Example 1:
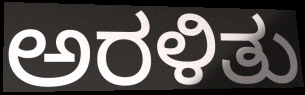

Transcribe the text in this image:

ಅರಳಿತು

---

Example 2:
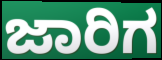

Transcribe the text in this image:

ಜಾರಿಗ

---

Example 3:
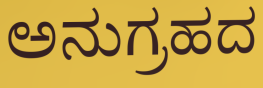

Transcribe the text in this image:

ಅನುಗ್ರಹದ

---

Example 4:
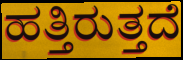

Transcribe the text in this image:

ಹತ್ತಿರುತ್ತದೆ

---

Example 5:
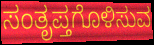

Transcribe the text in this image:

ಸಂತೃಪ್ತಗೊಳಿಸುವ